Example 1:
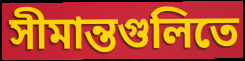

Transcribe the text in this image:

সীমান্তগুলিতে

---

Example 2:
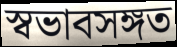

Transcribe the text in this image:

স্বভাবসঙ্গত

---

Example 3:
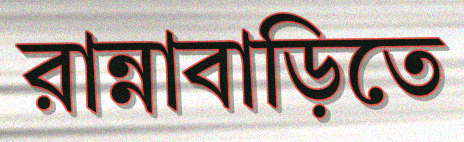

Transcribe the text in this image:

রান্নাবাড়িতে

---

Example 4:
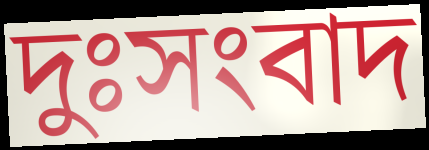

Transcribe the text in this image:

দুঃসংবাদ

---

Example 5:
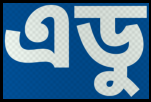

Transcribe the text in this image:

এডু